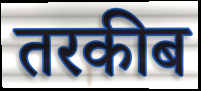
तरकीब